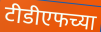
टीडीएफच्या